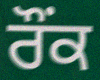
ਰੌਂਕ